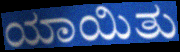
ಯಾಯಿತು